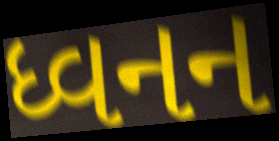
ધ્વનન